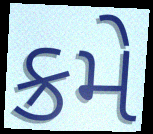
ક્રમે